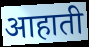
आहाती